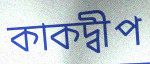
কাকদ্বীপ